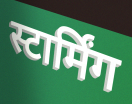
स्टार्मिंग